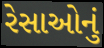
રેસાઓનું